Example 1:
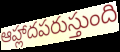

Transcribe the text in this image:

ఆహ్లాదపరుస్తుంది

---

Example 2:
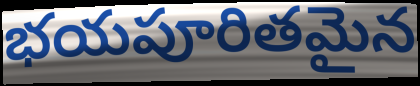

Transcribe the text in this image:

భయపూరితమైన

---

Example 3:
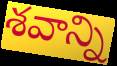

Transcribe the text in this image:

శవాన్ని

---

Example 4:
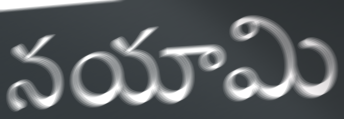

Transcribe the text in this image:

నయామి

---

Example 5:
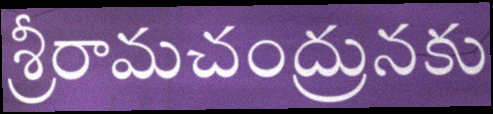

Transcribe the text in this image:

శ్రీరామచంద్రునకు